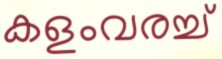
കളംവരച്ച്